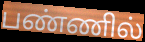
பண்ணில்